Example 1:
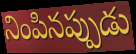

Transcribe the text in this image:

నింపినప్పుడు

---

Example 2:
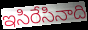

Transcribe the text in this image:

ఇసిరేసినాది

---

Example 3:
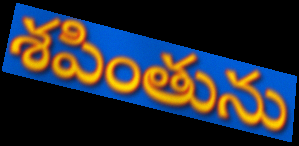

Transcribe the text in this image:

శపింతును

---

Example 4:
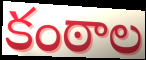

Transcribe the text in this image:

కంఠాల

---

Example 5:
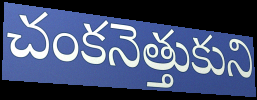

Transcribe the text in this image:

చంకనెత్తుకుని